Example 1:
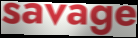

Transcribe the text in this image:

savage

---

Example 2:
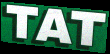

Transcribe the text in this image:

TAT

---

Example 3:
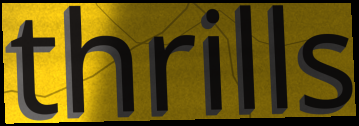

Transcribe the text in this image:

thrills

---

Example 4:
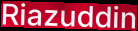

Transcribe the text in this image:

Riazuddin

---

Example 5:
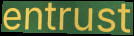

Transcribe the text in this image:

entrust